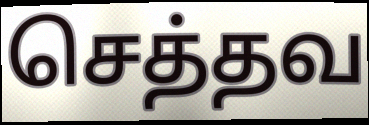
செத்தவ